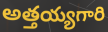
అత్తయ్యగారి